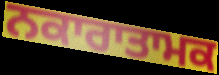
ਨਕਾਰਾਤਾਮਕ